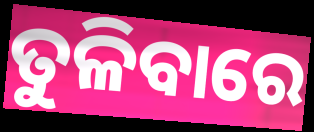
ତୁଳିବାରେ